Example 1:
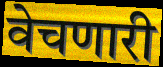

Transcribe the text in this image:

वेचणारी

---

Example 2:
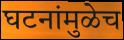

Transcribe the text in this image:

घटनांमुळेच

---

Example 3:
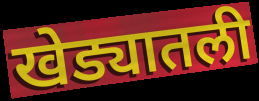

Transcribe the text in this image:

खेड्यातली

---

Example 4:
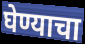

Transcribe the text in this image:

घेण्याचा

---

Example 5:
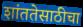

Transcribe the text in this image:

शांततेसाठीचा